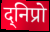
द्निप्रो